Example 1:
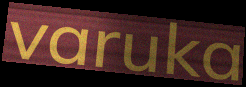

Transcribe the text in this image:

varuka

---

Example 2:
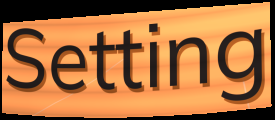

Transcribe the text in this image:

Setting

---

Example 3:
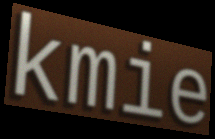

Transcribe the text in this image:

kmie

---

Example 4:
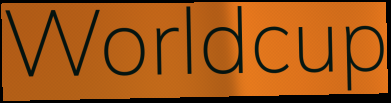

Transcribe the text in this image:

Worldcup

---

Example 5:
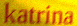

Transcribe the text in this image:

katrina